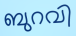
ബുറവി